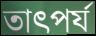
তাৎপৰ্য